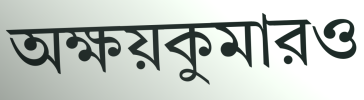
অক্ষয়কুমারও